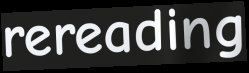
rereading